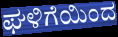
ಘಳಿಗೆಯಿಂದ